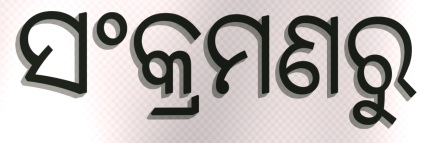
ସଂକ୍ରମଣରୁ